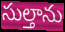
సుల్తాను